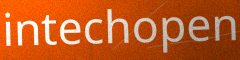
intechopen